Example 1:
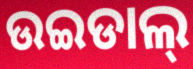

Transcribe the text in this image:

ଉଇଡାଲ୍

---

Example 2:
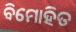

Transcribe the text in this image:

ବିମୋହିତ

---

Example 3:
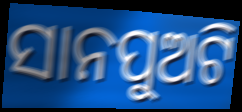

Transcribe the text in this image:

ସାନପୁଅଟି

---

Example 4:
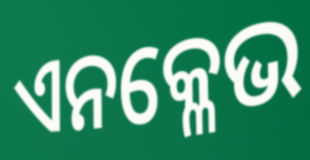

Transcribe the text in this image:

ଏନକ୍ଳେଭ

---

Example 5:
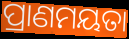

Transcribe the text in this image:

ପ୍ରାଣମୟତା